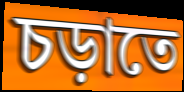
চড়াতে